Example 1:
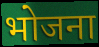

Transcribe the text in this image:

भोजना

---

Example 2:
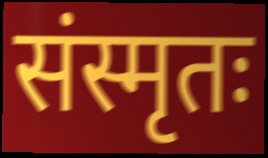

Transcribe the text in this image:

संस्मृतः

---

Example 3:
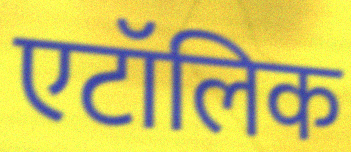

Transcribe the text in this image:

एटॉलिक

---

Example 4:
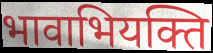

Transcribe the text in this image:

भावाभियक्ति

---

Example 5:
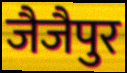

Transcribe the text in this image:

जैजैपुर